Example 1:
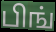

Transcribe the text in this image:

பிங்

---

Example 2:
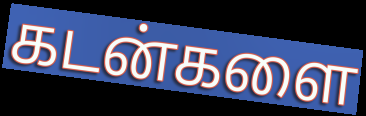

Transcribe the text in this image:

கடன்களை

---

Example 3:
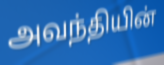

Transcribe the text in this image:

அவந்தியின்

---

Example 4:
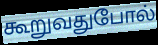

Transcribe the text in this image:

கூறுவதுபோல்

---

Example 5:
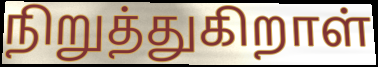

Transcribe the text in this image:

நிறுத்துகிறாள்